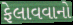
ફેલાવવાનો